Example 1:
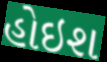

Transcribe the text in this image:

હોઇશ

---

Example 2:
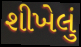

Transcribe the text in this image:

શીખેલું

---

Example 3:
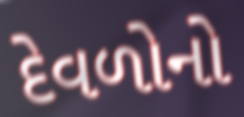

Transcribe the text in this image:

દેવળોનો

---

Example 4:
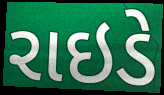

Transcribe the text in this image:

રાઇડે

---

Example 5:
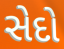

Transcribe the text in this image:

સેદો